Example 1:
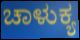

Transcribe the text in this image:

ಚಾಳುಕ್ಯ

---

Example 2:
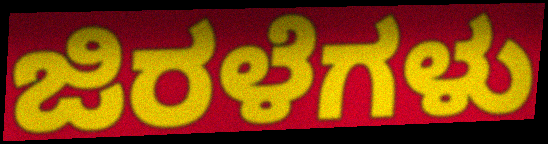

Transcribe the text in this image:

ಜಿರಳೆಗಳು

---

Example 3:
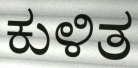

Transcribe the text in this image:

ಕುಳಿತ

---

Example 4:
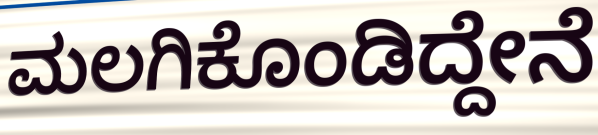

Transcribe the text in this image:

ಮಲಗಿಕೊಂಡಿದ್ದೇನೆ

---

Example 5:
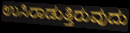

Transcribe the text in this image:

ಉಸಿರಾಡುತ್ತಿರುವುದು